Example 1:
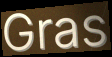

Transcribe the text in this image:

Gras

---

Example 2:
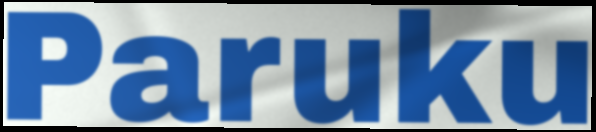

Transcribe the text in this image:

Paruku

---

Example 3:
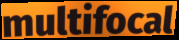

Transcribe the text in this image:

multifocal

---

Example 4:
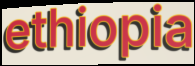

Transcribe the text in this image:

ethiopia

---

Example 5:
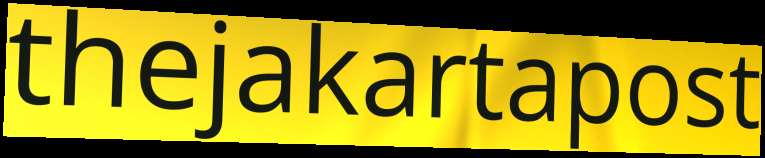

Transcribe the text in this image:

thejakartapost